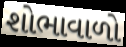
શોભાવાળો